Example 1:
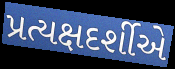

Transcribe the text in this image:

પ્રત્યક્ષદર્શીએ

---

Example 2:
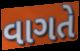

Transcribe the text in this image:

વાગતે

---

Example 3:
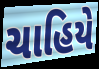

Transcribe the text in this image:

ચાહિયે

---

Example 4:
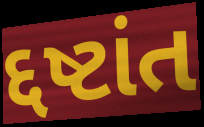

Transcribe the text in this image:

દ્દષ્ટાંત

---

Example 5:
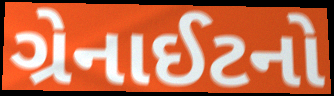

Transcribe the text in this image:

ગ્રેનાઈટનો